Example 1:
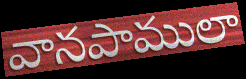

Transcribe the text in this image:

వానపాములా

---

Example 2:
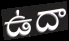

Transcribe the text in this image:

ఉదా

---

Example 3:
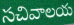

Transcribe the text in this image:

సచివాలయ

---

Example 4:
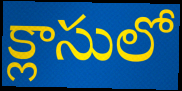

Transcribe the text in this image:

క్లాసులో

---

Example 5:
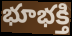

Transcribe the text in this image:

భూభక్తి